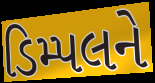
ડિમ્પલને